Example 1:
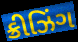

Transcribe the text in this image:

ક્રીઝિંગ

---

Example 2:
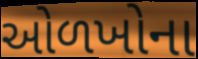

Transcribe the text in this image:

ઓળખોના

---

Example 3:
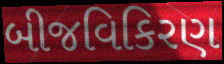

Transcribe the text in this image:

બીજવિકિરણ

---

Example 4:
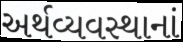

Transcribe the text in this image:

અર્થવ્યવસ્થાનાં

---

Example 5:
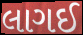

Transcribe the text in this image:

લાગઈ